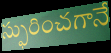
స్ఫురించగానే